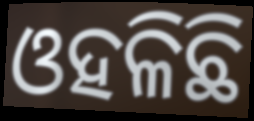
ଓହଳିଛି